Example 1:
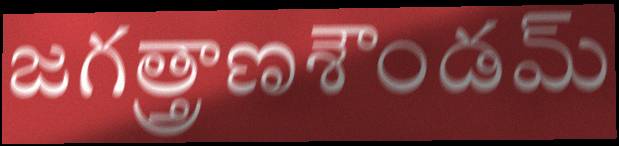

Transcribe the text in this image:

జగత్త్రాణశౌండమ్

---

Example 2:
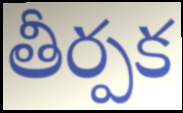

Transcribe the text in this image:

తీర్పక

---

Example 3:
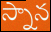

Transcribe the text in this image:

స్నాన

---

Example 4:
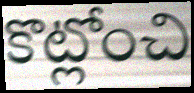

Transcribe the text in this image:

కొట్లోంచి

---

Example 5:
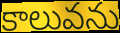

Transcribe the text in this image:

కాలువను